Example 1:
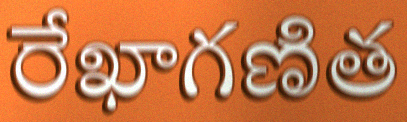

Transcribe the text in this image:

రేఖాగణిత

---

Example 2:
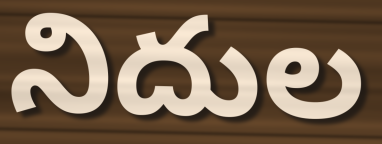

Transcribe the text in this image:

నిదుల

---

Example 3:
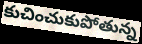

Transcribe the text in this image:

కుచించుకుపోతున్న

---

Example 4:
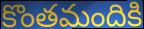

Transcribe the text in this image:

కొంతమందికి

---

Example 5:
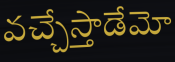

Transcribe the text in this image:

వచ్చేస్తాడేమో